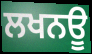
ਲਖਨਊ